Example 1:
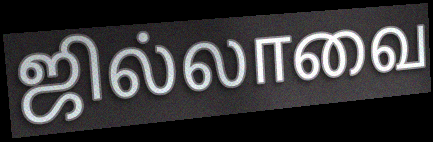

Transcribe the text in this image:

ஜில்லாவை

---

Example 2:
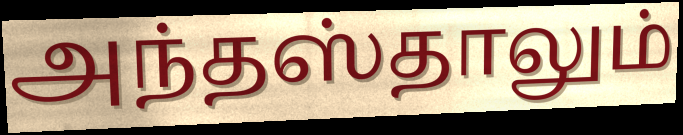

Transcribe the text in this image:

அந்தஸ்தாலும்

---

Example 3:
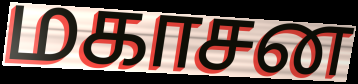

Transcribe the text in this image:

மகாசன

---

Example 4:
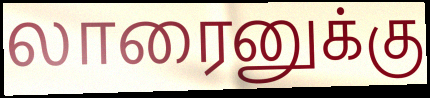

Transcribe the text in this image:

லாரைனுக்கு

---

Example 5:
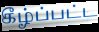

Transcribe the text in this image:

கீழ்ப்பட்ட